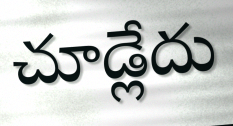
చూడ్లేదు